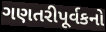
ગણતરીપૂર્વકનો